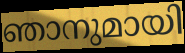
ഞാനുമായി